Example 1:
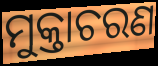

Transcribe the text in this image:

ମୁକ୍ତାଚରଣ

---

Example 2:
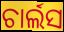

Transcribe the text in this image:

ଚାର୍ଲସ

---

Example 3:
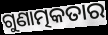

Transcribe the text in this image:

ଗୁଣାତ୍ମକତାର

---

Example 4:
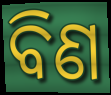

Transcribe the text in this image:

ବିଣ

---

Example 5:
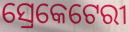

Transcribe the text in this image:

ସ୍ରେକେଟେରୀ